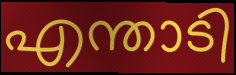
എന്താടി